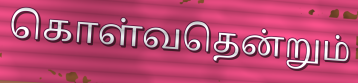
கொள்வதென்றும்